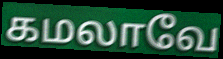
கமலாவே